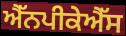
ਐੱਨਪੀਕੇਐੱਸ